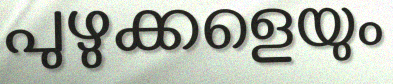
പുഴുക്കളെയും